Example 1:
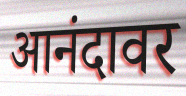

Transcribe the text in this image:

आनंदावर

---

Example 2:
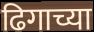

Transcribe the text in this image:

ढिगाच्या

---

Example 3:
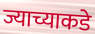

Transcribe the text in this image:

ज्याच्याकडे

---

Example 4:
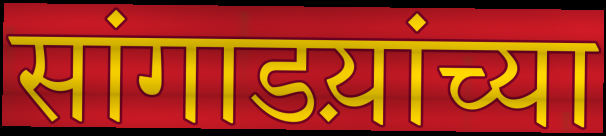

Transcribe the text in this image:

सांगाडय़ांच्या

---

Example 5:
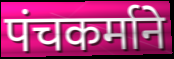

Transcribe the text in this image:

पंचकर्माने